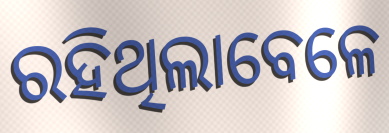
ରହିଥିଲାବେଳେ